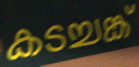
കടച്ചങ്ക്